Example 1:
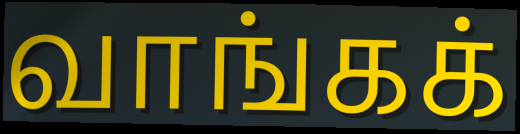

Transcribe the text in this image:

வாங்கக்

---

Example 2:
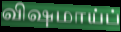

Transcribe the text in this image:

விஷமாய்ப்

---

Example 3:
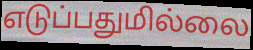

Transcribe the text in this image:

எடுப்பதுமில்லை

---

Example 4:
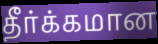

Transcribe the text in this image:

தீர்க்கமான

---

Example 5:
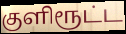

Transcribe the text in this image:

குளிரூட்ட